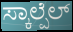
ಸ್ಕಾಲ್ಪೆಲ್